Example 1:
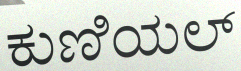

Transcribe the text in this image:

ಕುಣಿಯಲ್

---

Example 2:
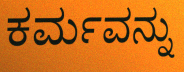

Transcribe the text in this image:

ಕರ್ಮವನ್ನು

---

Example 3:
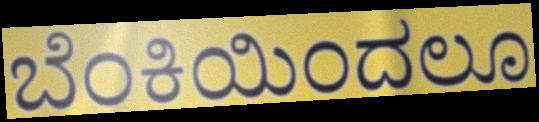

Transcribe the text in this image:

ಬೆಂಕಿಯಿಂದಲೂ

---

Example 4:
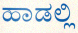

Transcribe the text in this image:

ಹಾಡಲ್ಲಿ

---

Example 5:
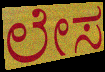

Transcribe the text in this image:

ಲೇಸ